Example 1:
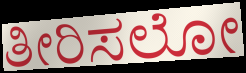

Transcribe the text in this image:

ತೀರಿಸಲೋ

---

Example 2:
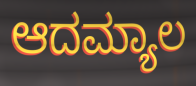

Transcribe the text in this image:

ಆದಮ್ಯಾಲ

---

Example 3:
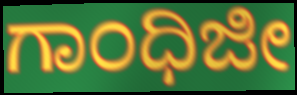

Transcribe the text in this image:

ಗಾಂಧಿಜೀ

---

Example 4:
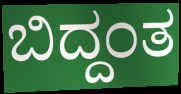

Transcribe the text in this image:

ಬಿದ್ದಂತ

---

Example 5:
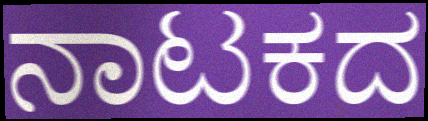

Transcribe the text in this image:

ನಾಟಕದ